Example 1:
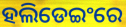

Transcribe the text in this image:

ହଲିଡେଇଂରେ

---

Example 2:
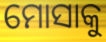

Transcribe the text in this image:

ମୋସାକୁ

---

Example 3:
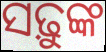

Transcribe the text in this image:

ସଢ଼ୁଙ୍କ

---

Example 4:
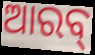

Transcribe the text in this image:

ଆରବ୍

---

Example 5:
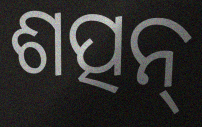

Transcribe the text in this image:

ଶତ୍ପନ୍